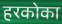
हरकोका